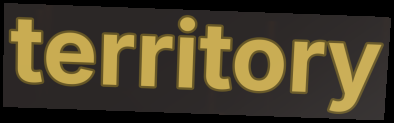
territory